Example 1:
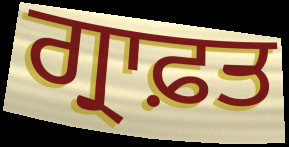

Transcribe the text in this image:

ਗ੍ਰਾਫ਼ਤ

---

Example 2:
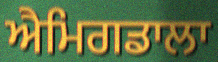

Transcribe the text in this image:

ਐਮਿਗਡਾਲਾ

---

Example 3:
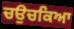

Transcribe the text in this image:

ਚਉਚਕਿਆ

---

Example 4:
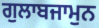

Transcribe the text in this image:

ਗੁਲਾਬਜਾਮੁਨ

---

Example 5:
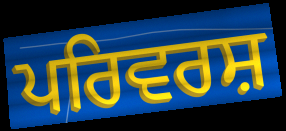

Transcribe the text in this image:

ਪਰਿਵਰਸ਼